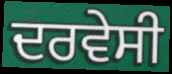
ਦਰਵੇਸੀ